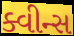
ક્વીન્સ